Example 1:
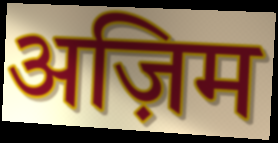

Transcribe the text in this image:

अज़िम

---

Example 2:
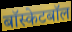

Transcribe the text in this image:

बॉस्केटबॉल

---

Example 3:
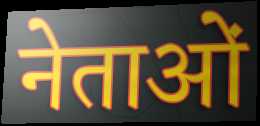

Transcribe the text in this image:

नेताओं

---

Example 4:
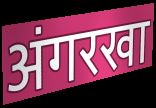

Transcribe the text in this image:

अंगरखा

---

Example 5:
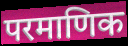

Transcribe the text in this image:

परमाणिक